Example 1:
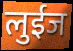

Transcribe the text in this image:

लुईज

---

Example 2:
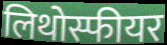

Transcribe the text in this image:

लिथोस्फीयर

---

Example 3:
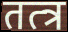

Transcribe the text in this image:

तत्त्र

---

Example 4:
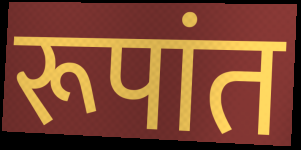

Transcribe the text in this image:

रूपांत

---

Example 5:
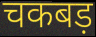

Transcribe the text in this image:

चकबड़